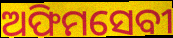
ଅଫିମସେବୀ